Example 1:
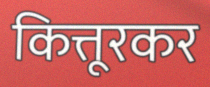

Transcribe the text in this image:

कित्तूरकर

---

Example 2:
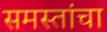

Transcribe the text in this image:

समस्तांचा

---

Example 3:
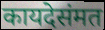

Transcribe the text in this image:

कायदेसंमत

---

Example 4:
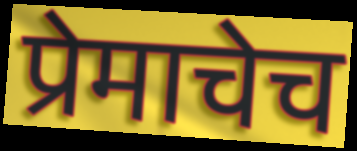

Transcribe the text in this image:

प्रेमाचेच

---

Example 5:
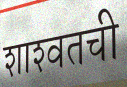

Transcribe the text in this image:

शाश्वतची